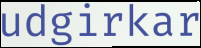
udgirkar